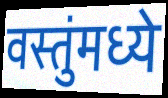
वस्तुंमध्ये